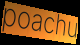
poachu